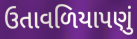
ઉતાવળિયાપણું